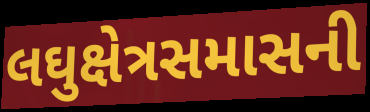
લઘુક્ષેત્રસમાસની